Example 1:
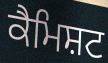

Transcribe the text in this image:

ਕੈਮਿਸ਼ਟ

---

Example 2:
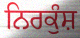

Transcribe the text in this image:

ਨਿਰਕੁੰਸ਼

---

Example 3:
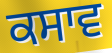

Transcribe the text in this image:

ਕਸਾਵ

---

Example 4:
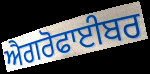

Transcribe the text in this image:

ਐਗਰੋਫਾਈਬਰ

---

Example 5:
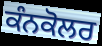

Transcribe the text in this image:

ਕੰਨਕੋਲਰ